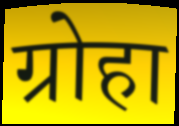
ग्रोहा